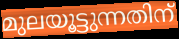
മുലയൂട്ടുന്നതിന്